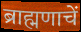
ब्राह्मणाचें